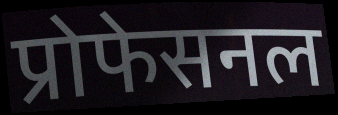
प्रोफेसनल